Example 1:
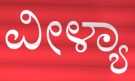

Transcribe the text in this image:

ವೀಳ್ಯಾ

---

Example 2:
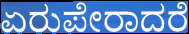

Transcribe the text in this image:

ಏರುಪೇರಾದರೆ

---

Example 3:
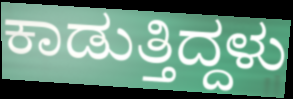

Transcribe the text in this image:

ಕಾಡುತ್ತಿದ್ದಳು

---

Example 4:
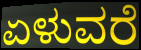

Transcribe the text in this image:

ಏಳುವರೆ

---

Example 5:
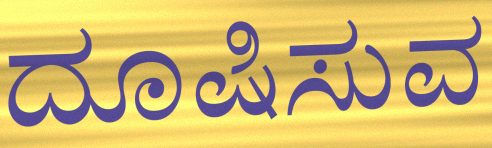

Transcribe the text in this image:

ದೂಷಿಸುವ